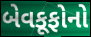
બેવકૂફોનો